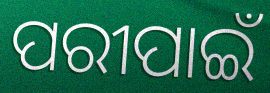
ପରୀପାଇଁ